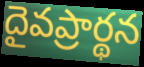
దైవప్రార్థన